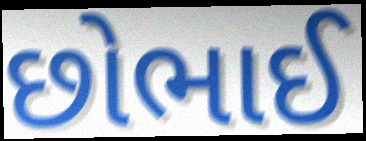
છોભાઈ